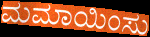
ಮಮಾಯಿಂಸು